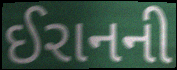
ઈરાનની